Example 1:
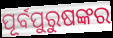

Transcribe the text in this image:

ପୂର୍ବପୁରୁଷଙ୍କର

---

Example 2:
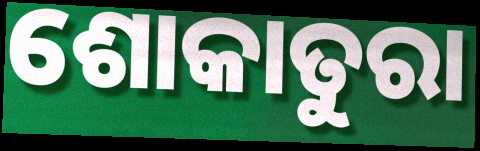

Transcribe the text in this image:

ଶୋକାତୁରା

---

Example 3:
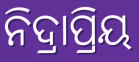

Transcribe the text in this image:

ନିଦ୍ରାପ୍ରିୟ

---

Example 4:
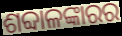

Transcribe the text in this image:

ଶବ୍ଦାଳଙ୍କାରର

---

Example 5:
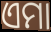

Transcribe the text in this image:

ଏମା